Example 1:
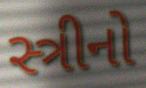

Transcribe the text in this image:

સ્ત્રીનો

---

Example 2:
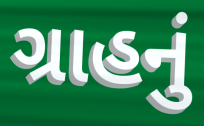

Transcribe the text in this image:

ગ્રાહનું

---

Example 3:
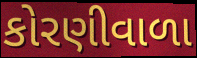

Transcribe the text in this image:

કોરણીવાળા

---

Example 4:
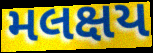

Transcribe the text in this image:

મલક્ષય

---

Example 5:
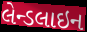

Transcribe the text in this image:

લેન્ડલાઇન